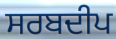
ਸਰਬਦੀਪ